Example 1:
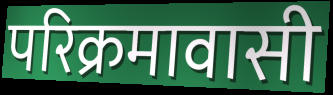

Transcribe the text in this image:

परिक्रमावासी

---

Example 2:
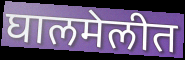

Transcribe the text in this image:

घालमेलीत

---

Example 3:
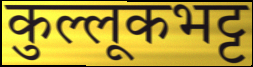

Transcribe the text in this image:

कुल्लूकभट्ट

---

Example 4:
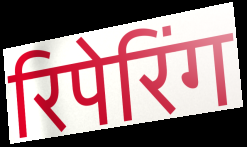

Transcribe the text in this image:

रिपेरिंग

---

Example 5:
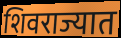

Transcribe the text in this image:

शिवराज्यात